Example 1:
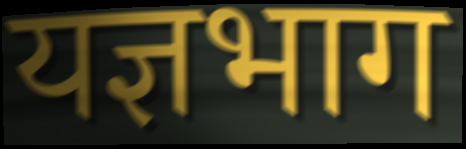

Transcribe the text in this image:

यज्ञभाग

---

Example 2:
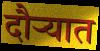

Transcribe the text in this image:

दौऱ्यात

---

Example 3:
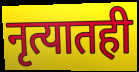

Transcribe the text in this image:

नृत्यातही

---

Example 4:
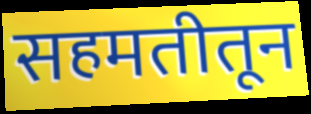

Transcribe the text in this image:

सहमतीतून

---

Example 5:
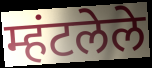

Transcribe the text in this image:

म्हंटलेले